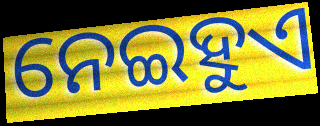
ନେଇହୁଏ